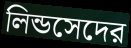
লিন্ডসেদের